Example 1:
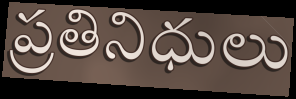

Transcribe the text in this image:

ప్రతినిధులు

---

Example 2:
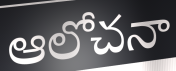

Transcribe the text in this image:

ఆలోచనా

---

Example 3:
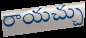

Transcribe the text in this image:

రాయచ్చు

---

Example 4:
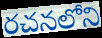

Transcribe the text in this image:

రచనలోని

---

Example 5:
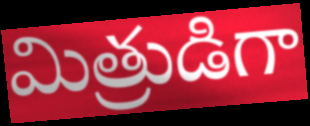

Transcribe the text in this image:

మిత్రుడిగా